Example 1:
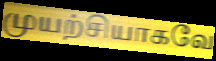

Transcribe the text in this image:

முயற்சியாகவே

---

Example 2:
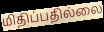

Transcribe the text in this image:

மிதிப்பதில்லை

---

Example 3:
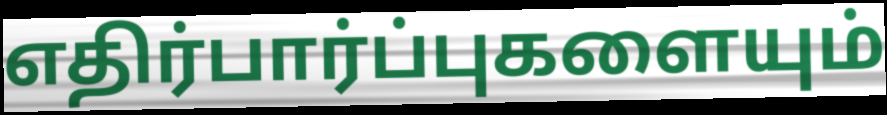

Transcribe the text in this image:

எதிர்பார்ப்புகளையும்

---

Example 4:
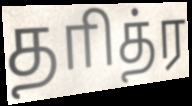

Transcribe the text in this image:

தரித்ர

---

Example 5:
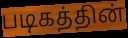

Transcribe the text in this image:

படிகத்தின்